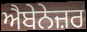
ਐਬੇਨੇਜ਼ਰ